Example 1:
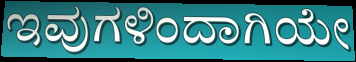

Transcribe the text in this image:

ಇವುಗಳಿಂದಾಗಿಯೇ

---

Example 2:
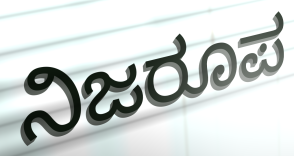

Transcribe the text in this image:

ನಿಜರೂಪ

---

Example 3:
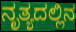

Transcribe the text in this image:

ನೃತ್ಯದಲ್ಲಿನ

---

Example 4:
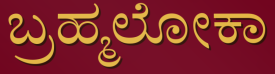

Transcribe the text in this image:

ಬ್ರಹ್ಮಲೋಕಾ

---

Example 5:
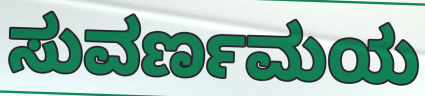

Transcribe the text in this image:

ಸುವರ್ಣಮಯ